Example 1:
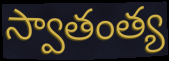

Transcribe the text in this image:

స్వాతంత్య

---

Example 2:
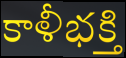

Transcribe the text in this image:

కాళీభక్తి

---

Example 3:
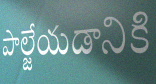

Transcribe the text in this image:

పాల్జేయడానికి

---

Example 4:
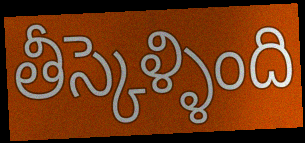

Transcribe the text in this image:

తీస్కెళ్ళింది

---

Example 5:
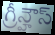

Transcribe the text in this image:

గ్రీన్హౌస్